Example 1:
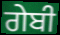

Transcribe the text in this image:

ਗੇਬੀ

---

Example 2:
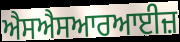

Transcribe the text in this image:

ਐਸਐਸਆਰਆਈਜ਼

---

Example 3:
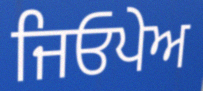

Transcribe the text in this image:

ਜਿਓਪੇਅ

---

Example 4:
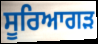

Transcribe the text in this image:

ਸੂਰਿਆਗੜ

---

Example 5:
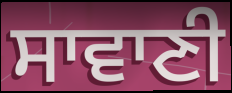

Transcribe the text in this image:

ਸਾਵਾਣੀ